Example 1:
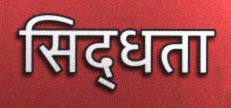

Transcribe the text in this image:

सिद्‌धता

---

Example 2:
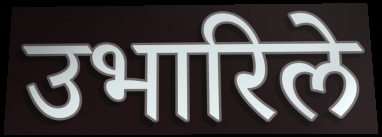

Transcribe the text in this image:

उभारिले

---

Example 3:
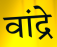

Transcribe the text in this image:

वांद्रे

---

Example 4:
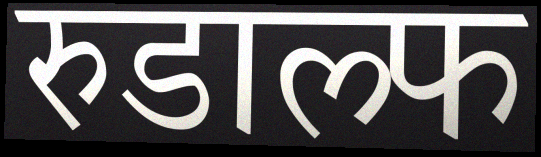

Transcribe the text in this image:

रुडाल्फ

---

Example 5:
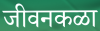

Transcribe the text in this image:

जीवनकळा